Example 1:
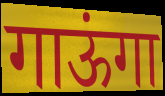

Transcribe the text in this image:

गाऊंगा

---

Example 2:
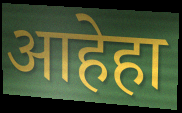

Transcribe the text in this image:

आहेहा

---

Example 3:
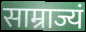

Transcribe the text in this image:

साम्राज्यं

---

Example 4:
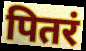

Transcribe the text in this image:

पितरं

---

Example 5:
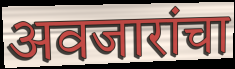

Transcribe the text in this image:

अवजारांचा